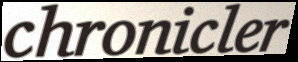
chronicler